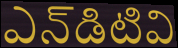
ఎన్‌డిటివి